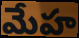
మేహ